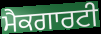
ਮੈਕਗਾਰਟੀ